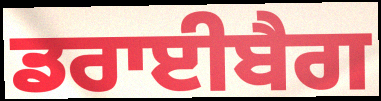
ਡਰਾਈਬੈਗ